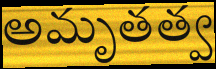
అమృతత్వ